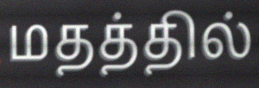
மதத்தில்